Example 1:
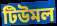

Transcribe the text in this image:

টিউমল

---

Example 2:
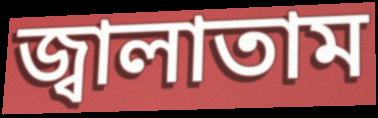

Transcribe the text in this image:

জ্বালাতাম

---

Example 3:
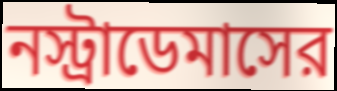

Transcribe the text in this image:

নস্ট্রাডেমাসের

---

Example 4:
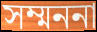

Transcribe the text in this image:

সম্মননা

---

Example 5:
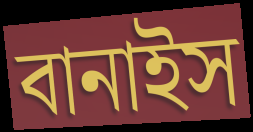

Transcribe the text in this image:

বানাইস